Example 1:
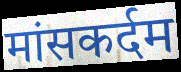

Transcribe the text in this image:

मांसकर्दम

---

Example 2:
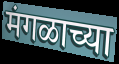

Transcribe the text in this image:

मंगळाच्या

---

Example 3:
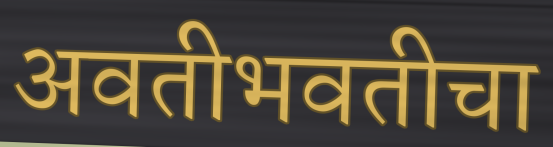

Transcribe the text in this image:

अवतीभवतीचा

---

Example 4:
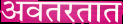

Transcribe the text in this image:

अवतरतात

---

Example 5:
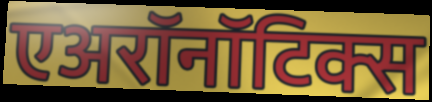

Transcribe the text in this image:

एअरॉनॉटिक्स